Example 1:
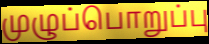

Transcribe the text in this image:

முழுப்பொறுப்பு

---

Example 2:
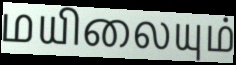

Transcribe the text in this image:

மயிலையும்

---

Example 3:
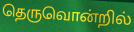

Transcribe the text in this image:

தெருவொன்றில்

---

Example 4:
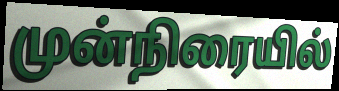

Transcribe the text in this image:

முன்நிரையில்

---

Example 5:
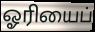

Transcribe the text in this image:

ஓரியைப்